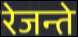
रेजन्ते